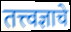
तत्त्वज्ञाचे